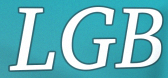
LGB